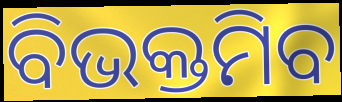
ବିଭକ୍ତମିବ